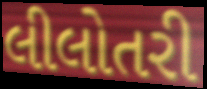
લીલોતરી